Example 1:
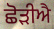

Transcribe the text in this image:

ਛੋੜੀਐ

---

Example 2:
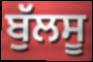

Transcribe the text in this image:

ਬੁੱਲਸੂ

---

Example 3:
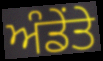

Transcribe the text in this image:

ਅੰਡੇਂਤੇ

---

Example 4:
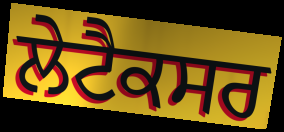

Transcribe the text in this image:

ਲੇਟੈਕਸਰ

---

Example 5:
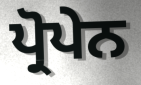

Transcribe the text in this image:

ਪ੍ਰੋਪੇਨ